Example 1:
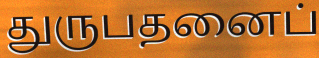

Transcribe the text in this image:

துருபதனைப்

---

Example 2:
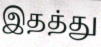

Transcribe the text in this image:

இதத்து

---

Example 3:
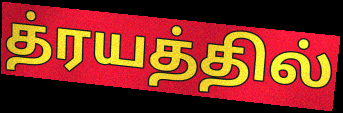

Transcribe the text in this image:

த்ரயத்தில்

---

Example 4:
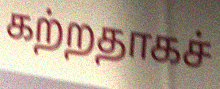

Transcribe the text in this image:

கற்றதாகச்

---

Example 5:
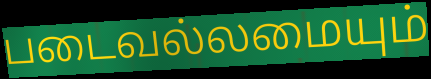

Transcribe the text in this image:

படைவல்லமையும்